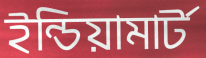
ইন্ডিয়ামার্ট